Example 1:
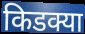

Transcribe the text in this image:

किडक्या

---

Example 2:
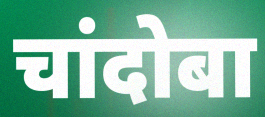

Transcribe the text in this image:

चांदोबा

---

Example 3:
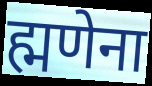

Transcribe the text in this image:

ह्मणेना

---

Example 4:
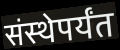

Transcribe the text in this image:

संस्थेपर्यंत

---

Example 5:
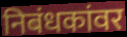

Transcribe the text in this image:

निबंधकांवर